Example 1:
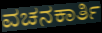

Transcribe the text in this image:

ವಚನಕಾರ್ತಿ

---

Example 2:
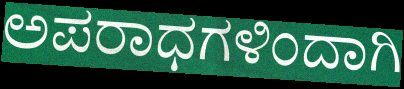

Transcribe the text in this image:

ಅಪರಾಧಗಳಿಂದಾಗಿ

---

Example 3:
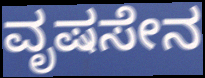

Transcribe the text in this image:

ವೃಷಸೇನ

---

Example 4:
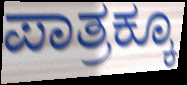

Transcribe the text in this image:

ಪಾತ್ರಕ್ಕೂ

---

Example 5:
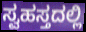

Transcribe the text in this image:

ಸ್ವಹಸ್ತದಲ್ಲಿ